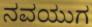
ನವಯುಗ